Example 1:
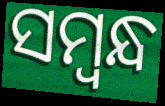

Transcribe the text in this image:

ସମ୍ୱନ୍ଧ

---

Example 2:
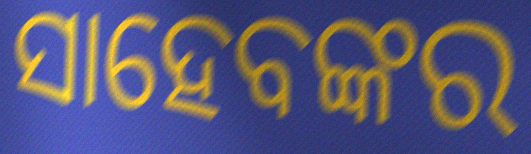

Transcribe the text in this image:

ସାହେବଙ୍କର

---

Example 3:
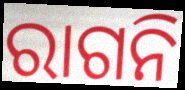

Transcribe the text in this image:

ରାଗନି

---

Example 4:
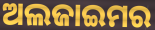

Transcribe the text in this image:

ଅଲଜାଇମର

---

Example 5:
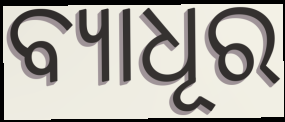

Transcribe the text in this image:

ବ୍ୟାଧୂର